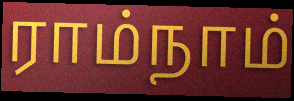
ராம்நாம்